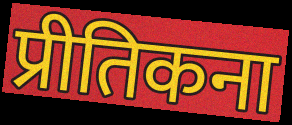
प्रीतिकना